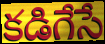
కడిగేసే